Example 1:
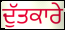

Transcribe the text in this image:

ਦੁੱਤਕਾਰੇ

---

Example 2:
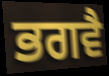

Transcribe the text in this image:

ਭਗਵੈ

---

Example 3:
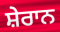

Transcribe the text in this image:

ਸ਼ੇਰਾਨ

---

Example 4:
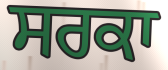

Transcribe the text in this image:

ਸਰਕਾ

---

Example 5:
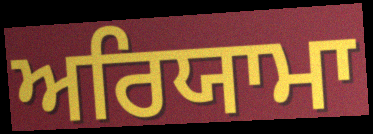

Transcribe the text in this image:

ਅਰਿਯਾਮਾ